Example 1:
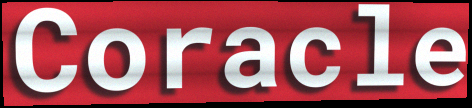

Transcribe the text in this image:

Coracle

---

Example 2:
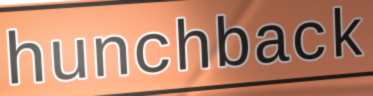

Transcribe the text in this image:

hunchback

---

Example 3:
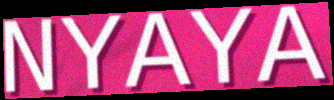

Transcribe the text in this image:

NYAYA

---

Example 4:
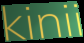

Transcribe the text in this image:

kinii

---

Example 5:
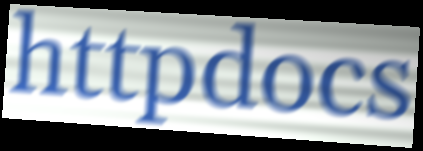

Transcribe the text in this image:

httpdocs